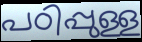
പഠിപ്പുള്ള